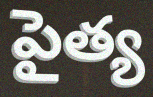
పైత్య